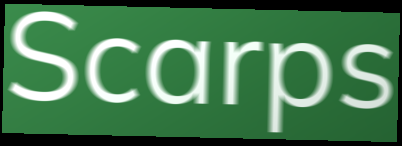
Scarps